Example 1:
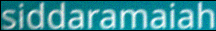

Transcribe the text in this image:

siddaramaiah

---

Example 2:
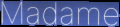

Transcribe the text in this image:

Madame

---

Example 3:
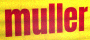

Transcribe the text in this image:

muller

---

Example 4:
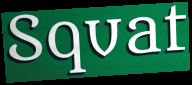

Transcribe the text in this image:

Squat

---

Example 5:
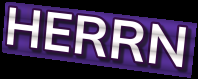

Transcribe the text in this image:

HERRN